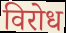
विरोध